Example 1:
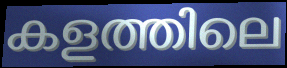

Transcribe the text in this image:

കളത്തിലെ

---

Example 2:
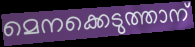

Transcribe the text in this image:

മെനക്കെടുത്താന്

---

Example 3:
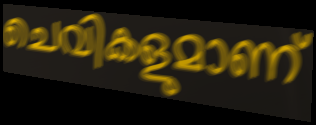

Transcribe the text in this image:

ചെവികളുമാണ്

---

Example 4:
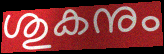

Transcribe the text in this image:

ശുകനും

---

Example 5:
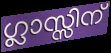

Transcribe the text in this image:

ഗ്ലാസ്സിന്